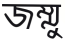
জম্মু